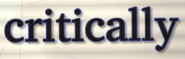
critically